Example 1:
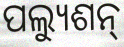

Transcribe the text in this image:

ପଲ୍ୟୁଶନ୍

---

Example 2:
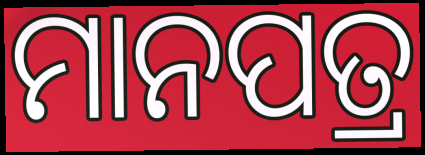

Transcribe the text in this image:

ମାନପତ୍ର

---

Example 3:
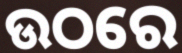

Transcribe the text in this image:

ଉଠରେ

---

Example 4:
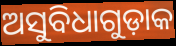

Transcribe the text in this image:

ଅସୁବିଧାଗୁଡ଼ାକ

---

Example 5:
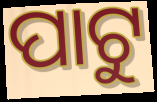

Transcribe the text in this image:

ପାଟୁ